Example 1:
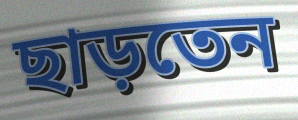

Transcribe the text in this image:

ছাড়তেন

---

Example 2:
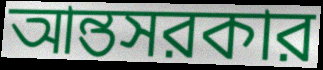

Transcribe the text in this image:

আন্তসরকার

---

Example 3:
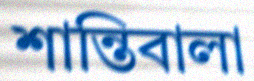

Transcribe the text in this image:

শান্তিবালা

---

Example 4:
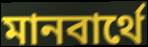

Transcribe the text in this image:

মানবার্থে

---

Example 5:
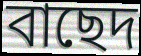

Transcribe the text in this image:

বাছেদ